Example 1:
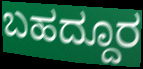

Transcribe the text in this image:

ಬಹದ್ದೂರ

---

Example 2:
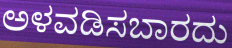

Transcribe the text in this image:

ಅಳವಡಿಸಬಾರದು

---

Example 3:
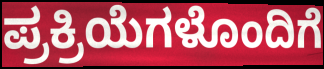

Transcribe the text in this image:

ಪ್ರಕ್ರಿಯೆಗಳೊಂದಿಗೆ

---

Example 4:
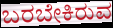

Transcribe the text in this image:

ಬರಬೇಕಿರುವ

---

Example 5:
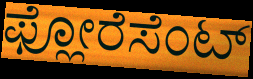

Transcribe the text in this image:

ಫ್ಲೋರೆಸೆಂಟ್